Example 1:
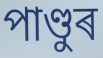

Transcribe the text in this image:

পাণ্ডুৰ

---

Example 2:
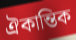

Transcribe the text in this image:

ঐকান্তিক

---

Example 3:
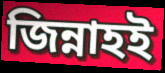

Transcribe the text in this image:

জিন্নাহই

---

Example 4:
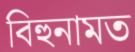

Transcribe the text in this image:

বিহুনামত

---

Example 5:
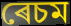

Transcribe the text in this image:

ৰেচম